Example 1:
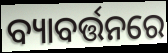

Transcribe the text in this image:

ବ୍ୟାବର୍ତ୍ତନରେ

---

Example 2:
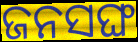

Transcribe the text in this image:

ଜନସଙ୍ଘ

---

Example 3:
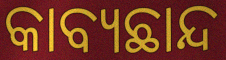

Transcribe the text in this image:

କାବ୍ୟଛାନ୍ଦ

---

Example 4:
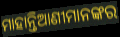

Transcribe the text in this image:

ମାହାନ୍ତିଆଣୀମାନଙ୍କର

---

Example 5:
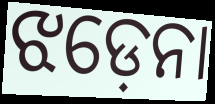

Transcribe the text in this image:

ଝଡ଼େନା